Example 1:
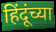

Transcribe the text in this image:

हिंदूंच्या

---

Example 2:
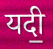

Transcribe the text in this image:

यदी॒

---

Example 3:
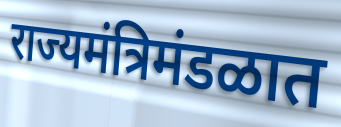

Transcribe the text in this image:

राज्यमंत्रिमंडळात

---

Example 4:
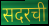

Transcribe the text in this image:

सदरची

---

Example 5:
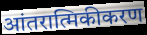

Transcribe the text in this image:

आंतरात्मिकीकरण